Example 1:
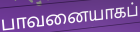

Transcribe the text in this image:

பாவனையாகப்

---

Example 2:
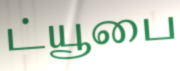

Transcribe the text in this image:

ட்யூபை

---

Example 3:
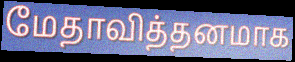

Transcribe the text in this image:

மேதாவித்தனமாக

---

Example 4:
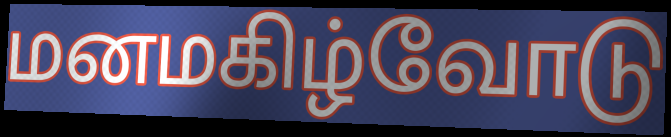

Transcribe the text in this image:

மனமகிழ்வோடு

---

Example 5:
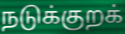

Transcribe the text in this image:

நடுக்குறக்